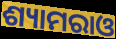
ଶ୍ୟାମରାଓ